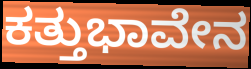
ಕತ್ತುಭಾವೇನ